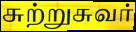
சுற்றுசுவர்